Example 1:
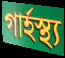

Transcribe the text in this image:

গার্হস্থ্য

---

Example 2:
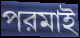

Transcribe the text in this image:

পরমাই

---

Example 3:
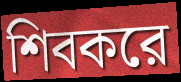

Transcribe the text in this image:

শিবকরে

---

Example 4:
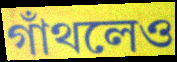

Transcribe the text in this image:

গাঁথলেও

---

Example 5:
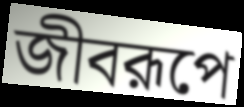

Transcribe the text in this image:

জীবরূপে